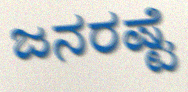
ಜನರಷ್ಟೆ